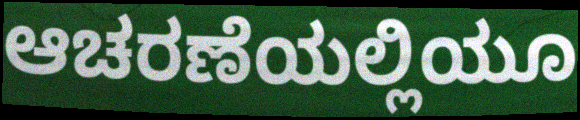
ಆಚರಣೆಯಲ್ಲಿಯೂ